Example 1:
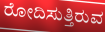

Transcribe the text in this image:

ರೋದಿಸುತ್ತಿರುವ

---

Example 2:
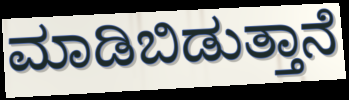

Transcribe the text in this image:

ಮಾಡಿಬಿಡುತ್ತಾನೆ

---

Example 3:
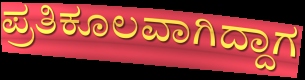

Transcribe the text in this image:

ಪ್ರತಿಕೂಲವಾಗಿದ್ದಾಗ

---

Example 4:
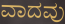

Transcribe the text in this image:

ವಾದವು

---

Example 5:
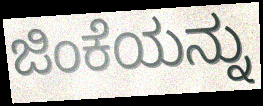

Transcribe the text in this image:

ಜಿಂಕೆಯನ್ನು